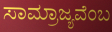
ಸಾಮ್ರಾಜ್ಯವೆಂಬ